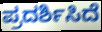
ಪ್ರದರ್ಶಿಸಿದೆ